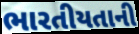
ભારતીયતાની